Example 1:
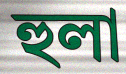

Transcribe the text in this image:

হুলা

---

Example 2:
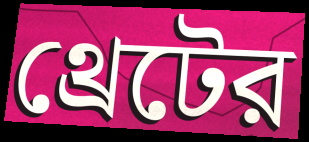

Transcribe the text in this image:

থ্রেটের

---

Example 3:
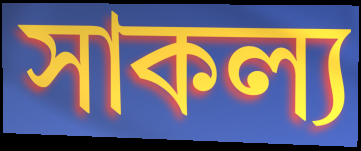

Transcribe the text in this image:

সাকল্য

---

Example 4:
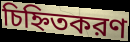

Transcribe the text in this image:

চিহ্নিতকরণ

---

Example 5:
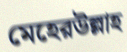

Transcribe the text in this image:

মেহেরউল্লাহ